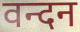
वन्दन